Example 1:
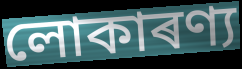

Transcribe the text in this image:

লোকাৰণ্য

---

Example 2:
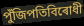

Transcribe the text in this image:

পুঁজিপতিবিৰোধী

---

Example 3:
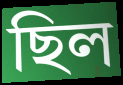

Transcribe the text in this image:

ছিল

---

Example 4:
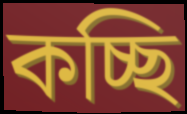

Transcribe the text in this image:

কচ্ছি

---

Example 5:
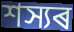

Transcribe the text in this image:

শস্যৰ